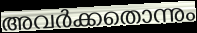
അവർക്കതൊന്നും